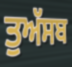
ਤੁਅੱਸਬ